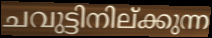
ചവുട്ടിനില്ക്കുന്ന